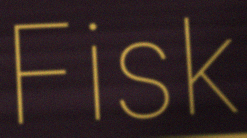
Fisk